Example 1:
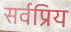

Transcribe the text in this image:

सर्वप्रिय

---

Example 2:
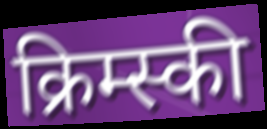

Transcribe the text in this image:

क्रिम्स्की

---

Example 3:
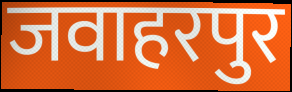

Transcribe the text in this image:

जवाहरपुर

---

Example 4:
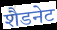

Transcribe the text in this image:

शैडनेट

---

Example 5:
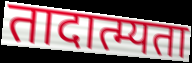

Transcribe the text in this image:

तादात्म्यता